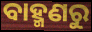
ବାହ୍ମଣରୁ